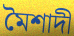
মৈশাদী